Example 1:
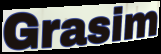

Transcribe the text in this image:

Grasim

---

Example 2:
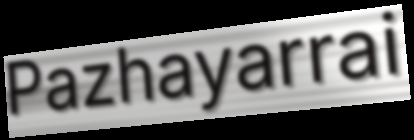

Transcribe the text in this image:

Pazhayarrai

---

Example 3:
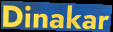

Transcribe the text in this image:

Dinakar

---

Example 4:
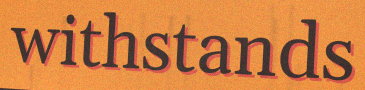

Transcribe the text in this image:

withstands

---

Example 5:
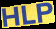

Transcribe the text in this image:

HLP